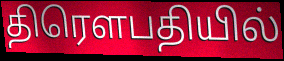
திரௌபதியில்